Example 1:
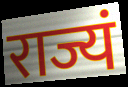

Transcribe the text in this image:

राज्यं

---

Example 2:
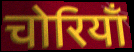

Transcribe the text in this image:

चोरियाँ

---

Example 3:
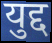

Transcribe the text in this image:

युद्द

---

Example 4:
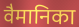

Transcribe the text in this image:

वैमानिका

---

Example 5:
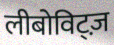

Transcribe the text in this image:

लीबोविट्ज़